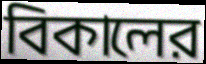
বিকালের